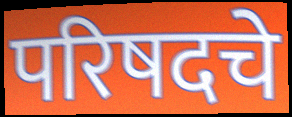
परिषदचे